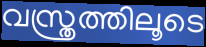
വസ്ത്രത്തിലൂടെ